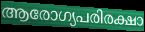
ആരോഗ്യപരിരക്ഷാ